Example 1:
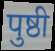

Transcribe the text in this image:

पुष्ठी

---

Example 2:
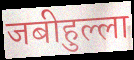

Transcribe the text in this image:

जबीहुल्ला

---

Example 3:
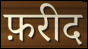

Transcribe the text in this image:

फ़रीद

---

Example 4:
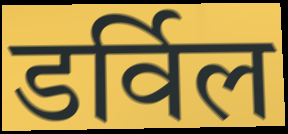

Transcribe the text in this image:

डर्विल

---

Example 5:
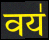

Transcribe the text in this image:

वय॑